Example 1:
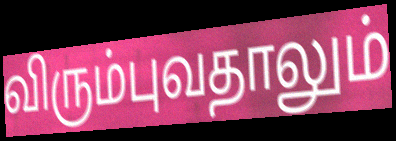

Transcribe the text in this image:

விரும்புவதாலும்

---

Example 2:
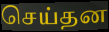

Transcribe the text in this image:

செய்தன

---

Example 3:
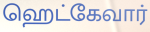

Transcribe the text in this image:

ஹெட்கேவார்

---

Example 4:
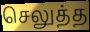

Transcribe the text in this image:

செலுத்த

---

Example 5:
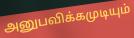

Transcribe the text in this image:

அனுபவிக்கமுடியும்